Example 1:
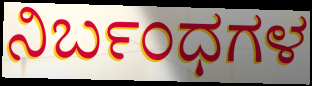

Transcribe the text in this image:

ನಿರ್ಬಂಧಗಳ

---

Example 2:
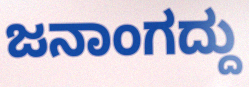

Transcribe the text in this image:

ಜನಾಂಗದ್ದು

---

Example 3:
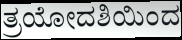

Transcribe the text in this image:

ತ್ರಯೋದಶಿಯಿಂದ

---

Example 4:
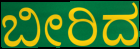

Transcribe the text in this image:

ಬೀರಿದ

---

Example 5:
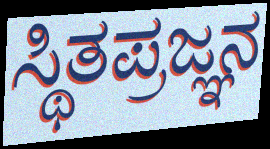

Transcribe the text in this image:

ಸ್ಥಿತಪ್ರಜ್ಞನ